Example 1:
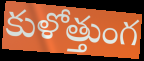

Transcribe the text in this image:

కుళోత్తుంగ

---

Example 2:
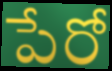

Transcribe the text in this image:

పేరో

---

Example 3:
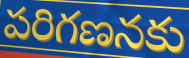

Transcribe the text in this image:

పరిగణనకు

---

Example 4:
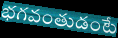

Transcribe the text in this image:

భగవంతుడంటే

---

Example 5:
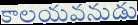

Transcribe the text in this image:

కాలయవనుడు